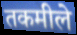
तकमीले